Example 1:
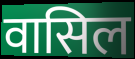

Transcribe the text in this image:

वासिल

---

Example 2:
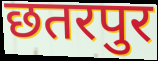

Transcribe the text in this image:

छतरपुर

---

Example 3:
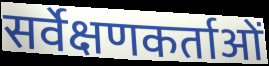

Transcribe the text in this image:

सर्वेक्षणकर्ताओं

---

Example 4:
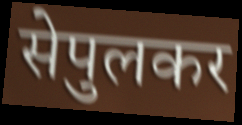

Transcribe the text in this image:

सेपुलकर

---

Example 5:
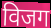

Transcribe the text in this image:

विजग